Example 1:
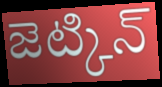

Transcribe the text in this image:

జెట్కిన్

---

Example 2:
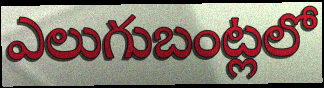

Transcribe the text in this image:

ఎలుగుబంట్లలో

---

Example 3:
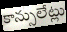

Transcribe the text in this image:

కాన్సులేట్లు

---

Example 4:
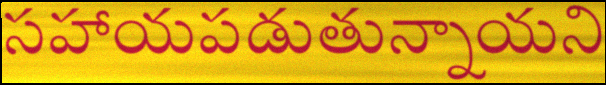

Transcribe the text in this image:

సహాయపడుతున్నాయని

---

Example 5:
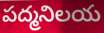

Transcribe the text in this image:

పద్మనిలయ